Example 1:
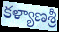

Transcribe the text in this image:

కళ్యాణశ్రీ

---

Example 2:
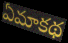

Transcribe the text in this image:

ఏమాకథ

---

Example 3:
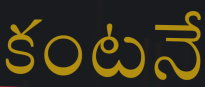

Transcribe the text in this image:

కంటనే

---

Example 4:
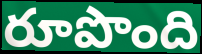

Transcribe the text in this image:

రూపొంది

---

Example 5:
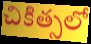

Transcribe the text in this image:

చికిత్సలో